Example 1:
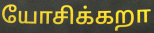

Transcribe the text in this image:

யோசிக்கறா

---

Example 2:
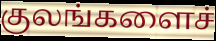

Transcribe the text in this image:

குலங்களைச்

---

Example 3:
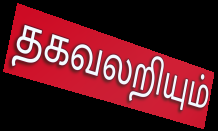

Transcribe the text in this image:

தகவலறியும்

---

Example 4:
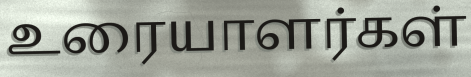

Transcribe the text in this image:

உரையாளர்கள்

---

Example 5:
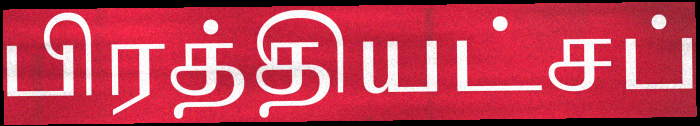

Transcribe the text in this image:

பிரத்தியட்சப்